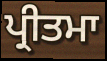
ਪ੍ਰੀਤਮਾ